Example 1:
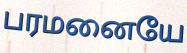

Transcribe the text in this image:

பரமனையே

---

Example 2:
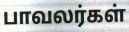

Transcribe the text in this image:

பாவலர்கள்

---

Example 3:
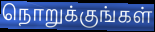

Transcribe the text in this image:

நொறுக்குங்கள்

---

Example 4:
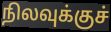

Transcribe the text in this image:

நிலவுக்குச்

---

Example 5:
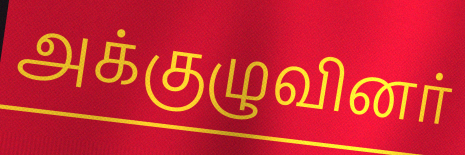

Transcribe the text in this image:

அக்குழுவினர்